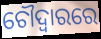
ଚୌଦ୍ୱାରରେ